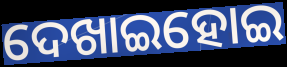
ଦେଖାଇହୋଇ